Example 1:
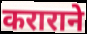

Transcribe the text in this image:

कराराने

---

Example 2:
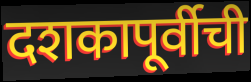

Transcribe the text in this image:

दशकापूर्वीची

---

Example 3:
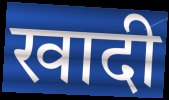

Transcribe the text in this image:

खादी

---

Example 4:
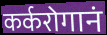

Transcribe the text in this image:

कर्करोगानं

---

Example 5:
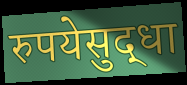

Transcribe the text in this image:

रुपयेसुद्धा